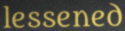
lessened